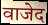
वाजेद